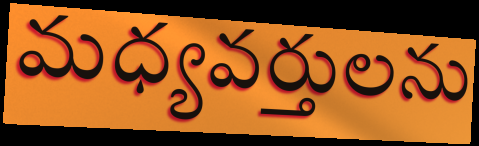
మధ్యవర్తులను